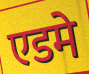
एडमे